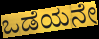
ಒಡೆಯನೇ